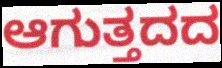
ಆಗುತ್ತದದ